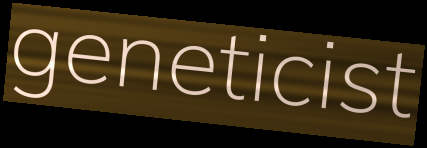
geneticist